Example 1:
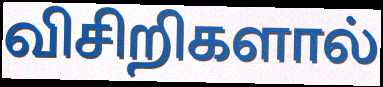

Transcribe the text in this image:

விசிறிகளால்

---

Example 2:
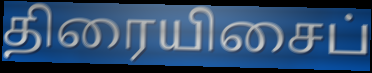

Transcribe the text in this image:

திரையிசைப்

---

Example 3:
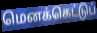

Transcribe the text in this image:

மெனக்கெட்டுப்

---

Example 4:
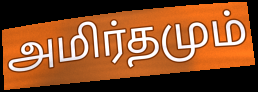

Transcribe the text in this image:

அமிர்தமும்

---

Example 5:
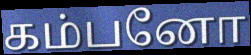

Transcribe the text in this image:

கம்பனோ